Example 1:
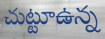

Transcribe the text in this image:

చుట్టూఉన్న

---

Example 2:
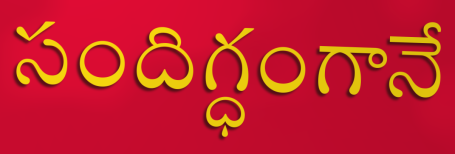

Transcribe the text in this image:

సందిగ్ధంగానే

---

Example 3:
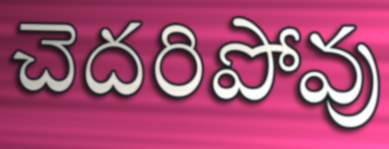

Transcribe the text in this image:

చెదరిపోవు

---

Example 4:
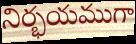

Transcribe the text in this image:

నిర్భయముగా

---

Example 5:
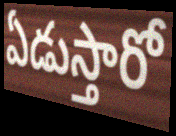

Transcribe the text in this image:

ఏడుస్తారో